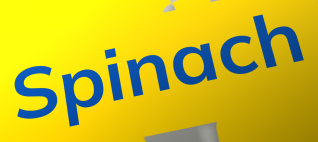
Spinach